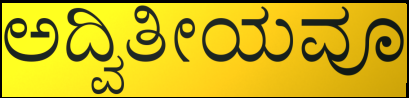
ಅದ್ವಿತೀಯವೂ